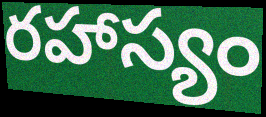
రహాస్యం